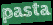
pasta